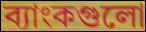
ব্যাংকগুলো